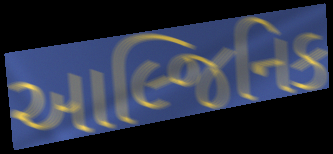
આલ્જિનિક